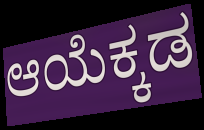
ಆಯೆಕ್ಕಡ